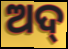
ଅଦ୍